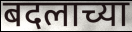
बदलाच्या